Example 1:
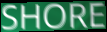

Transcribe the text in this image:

SHORE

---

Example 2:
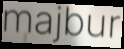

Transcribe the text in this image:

majbur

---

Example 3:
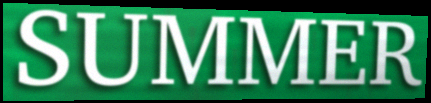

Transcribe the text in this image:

SUMMER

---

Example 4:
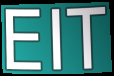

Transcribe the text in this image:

EIT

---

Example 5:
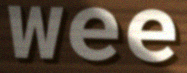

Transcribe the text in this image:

wee